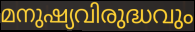
മനുഷ്യവിരുദ്ധവും